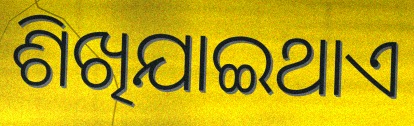
ଶିଖିଯାଇଥାଏ